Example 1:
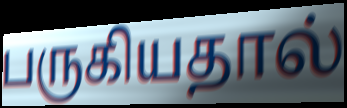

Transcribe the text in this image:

பருகியதால்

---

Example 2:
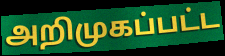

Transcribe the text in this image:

அறிமுகப்பட்ட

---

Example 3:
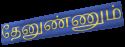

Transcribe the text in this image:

தேனுண்ணும்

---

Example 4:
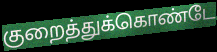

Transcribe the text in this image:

குறைத்துக்கொண்டே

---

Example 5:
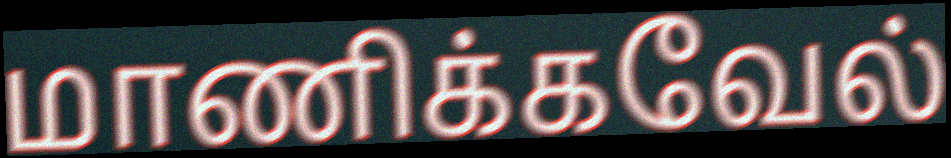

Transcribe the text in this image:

மாணிக்கவேல்